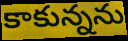
కాకున్నను